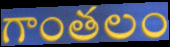
గాంతలం